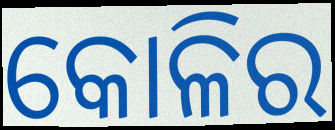
କୋଳିର